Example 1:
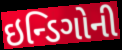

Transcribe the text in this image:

ઇન્ડિગોની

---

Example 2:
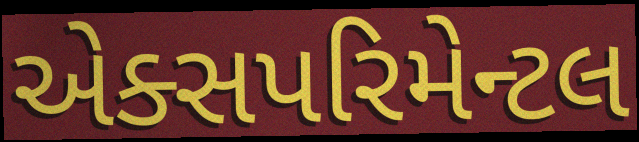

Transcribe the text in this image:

એક્સપરિમેન્ટલ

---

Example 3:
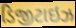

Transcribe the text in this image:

ડિજીટાઇઝ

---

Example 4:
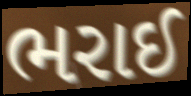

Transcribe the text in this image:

ભરાઈ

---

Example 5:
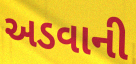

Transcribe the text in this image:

અડવાની